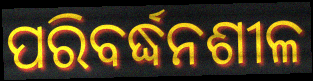
ପରିବର୍ଦ୍ଧନଶୀଳ